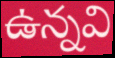
ఉన్నవి